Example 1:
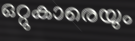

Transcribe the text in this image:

ഒറ്റുകാരെയും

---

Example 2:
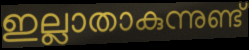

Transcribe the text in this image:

ഇല്ലാതാകുന്നുണ്ട്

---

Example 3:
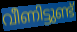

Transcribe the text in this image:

വീണിട്ടുണ്ട്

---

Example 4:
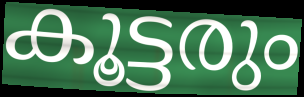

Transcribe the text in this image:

കൂട്ടരും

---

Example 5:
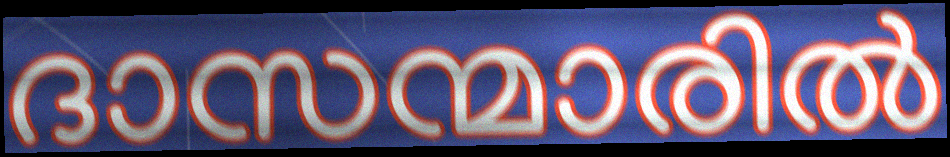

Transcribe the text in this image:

ദാസന്മാരിൽ